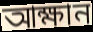
আক্ষান